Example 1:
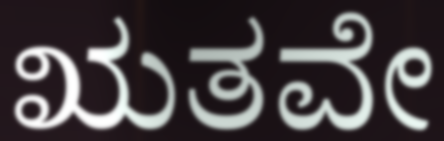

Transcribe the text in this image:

ಋತವೇ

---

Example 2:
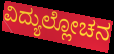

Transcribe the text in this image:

ವಿದ್ಯುಲ್ಲೋಚನ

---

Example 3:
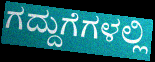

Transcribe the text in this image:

ಗದ್ದುಗೆಗಳಲ್ಲಿ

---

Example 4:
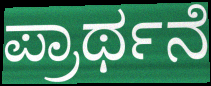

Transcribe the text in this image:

ಪ್ರಾರ್ಥನೆ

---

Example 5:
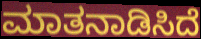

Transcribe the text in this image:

ಮಾತನಾಡಿಸಿದೆ